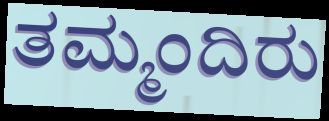
ತಮ್ಮಂದಿರು